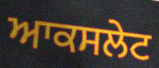
ਆਕਸਲੇਟ